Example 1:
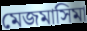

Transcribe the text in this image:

মেজমাসিমা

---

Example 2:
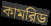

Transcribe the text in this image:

কামরিড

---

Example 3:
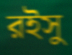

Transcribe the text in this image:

রইসু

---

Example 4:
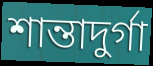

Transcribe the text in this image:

শান্তাদুর্গা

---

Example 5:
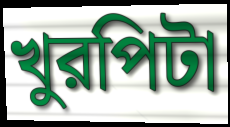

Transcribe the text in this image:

খুরপিটা